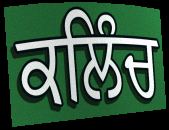
ਕਲਿੰਚ